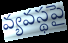
వ్యవస్థపై